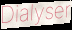
Dialyser